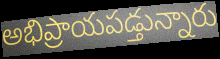
అభిప్రాయపడ్తున్నారు